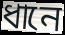
ধানে